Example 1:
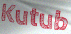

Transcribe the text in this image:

Kutub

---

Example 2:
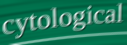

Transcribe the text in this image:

cytological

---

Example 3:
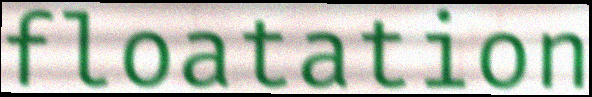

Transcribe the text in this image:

floatation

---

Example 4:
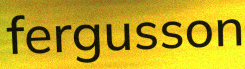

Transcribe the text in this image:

fergusson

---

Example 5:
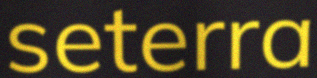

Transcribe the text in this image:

seterra